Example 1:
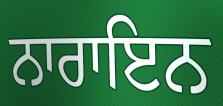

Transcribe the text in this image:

ਨਾਰਾਇਨ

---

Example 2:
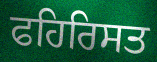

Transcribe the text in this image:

ਫਹਿਰਿਸਤ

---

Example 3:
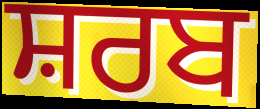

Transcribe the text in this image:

ਸ਼ਰਬ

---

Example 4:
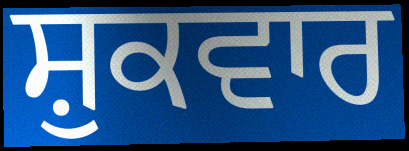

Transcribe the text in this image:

ਸ਼ੁਕਵਾਰ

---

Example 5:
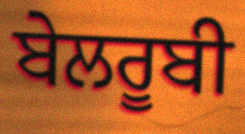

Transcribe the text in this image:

ਬੇਲਰੂਬੀ